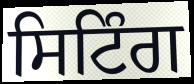
ਸਿਟਿੰਗ